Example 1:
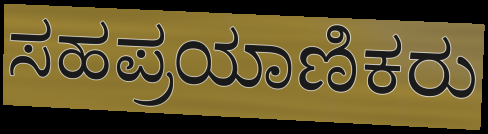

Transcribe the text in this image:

ಸಹಪ್ರಯಾಣಿಕರು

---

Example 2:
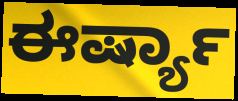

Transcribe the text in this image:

ಈರ್ಷ್ಯಾ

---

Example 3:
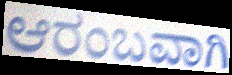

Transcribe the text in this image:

ಆರಂಬವಾಗಿ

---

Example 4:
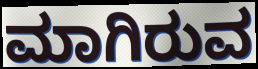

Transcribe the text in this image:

ಮಾಗಿರುವ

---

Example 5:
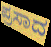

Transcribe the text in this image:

ಪ್ರಸಾದ